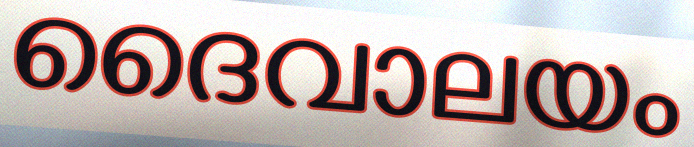
ദൈവാലയം